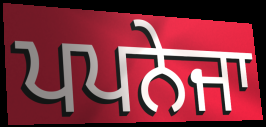
ਪਪਨੇਜਾ